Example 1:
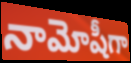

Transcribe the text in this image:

నామోషీగా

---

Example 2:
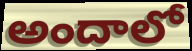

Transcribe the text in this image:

అందాలో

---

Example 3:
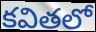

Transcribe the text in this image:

కవితలో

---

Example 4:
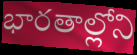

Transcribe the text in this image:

భారతాల్లోని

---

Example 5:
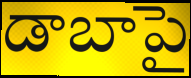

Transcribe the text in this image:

డాబాపై